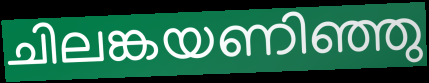
ചിലങ്കയണിഞ്ഞു